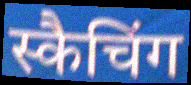
स्कैचिंग